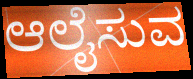
ಆಲೈಸುವ